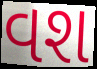
વશ